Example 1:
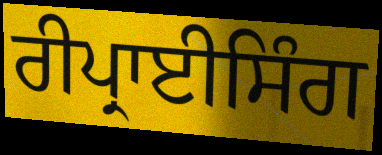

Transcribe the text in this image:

ਰੀਪ੍ਰਾਈਸਿੰਗ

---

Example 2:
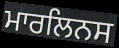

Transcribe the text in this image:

ਮਾਰਲਿਨਸ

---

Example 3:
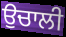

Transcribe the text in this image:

ਉਚਾਲੀ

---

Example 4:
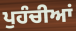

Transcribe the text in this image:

ਪੁਹੰਚੀਆਂ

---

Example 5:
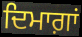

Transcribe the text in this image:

ਦਿਮਾਗ਼ਾਂ